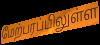
மேற்பரப்பிலுள்ள